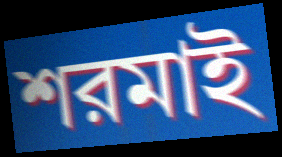
শরমাই